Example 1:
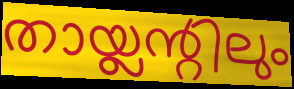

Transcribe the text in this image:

തായ്ലന്റിലും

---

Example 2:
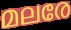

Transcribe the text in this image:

മലരേ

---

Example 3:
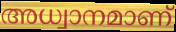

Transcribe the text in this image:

അധ്വാനമാണ്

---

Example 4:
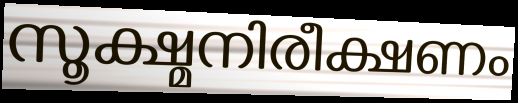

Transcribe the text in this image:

സൂക്ഷ്മനിരീക്ഷണം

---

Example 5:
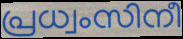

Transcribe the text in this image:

പ്രധ്വംസിനീ